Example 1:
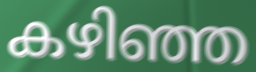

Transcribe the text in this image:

കഴിഞ്ഞ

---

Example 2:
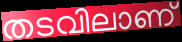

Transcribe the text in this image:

തടവിലാണ്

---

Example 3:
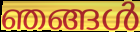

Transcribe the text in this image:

ഞങ്ങൾ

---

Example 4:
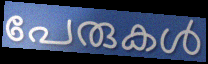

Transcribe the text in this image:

പേരുകൾ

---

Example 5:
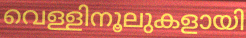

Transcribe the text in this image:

വെള്ളിനൂലുകളായി